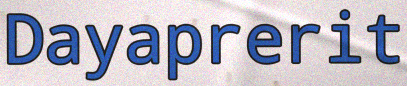
Dayaprerit